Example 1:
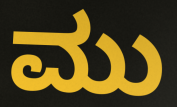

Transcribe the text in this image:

ಮು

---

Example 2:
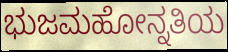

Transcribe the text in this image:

ಭುಜಮಹೋನ್ನತಿಯ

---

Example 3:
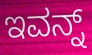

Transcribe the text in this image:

ಇವನ್ನ್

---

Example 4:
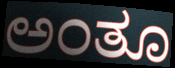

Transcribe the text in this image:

ಅಂತೂ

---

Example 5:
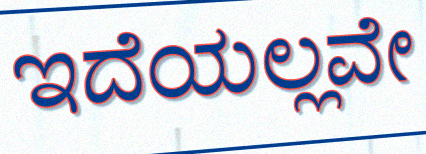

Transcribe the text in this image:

ಇದೆಯಲ್ಲವೇ